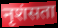
नृशंसता